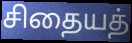
சிதையத்